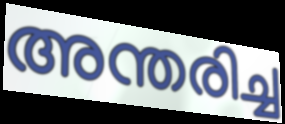
അന്തരിച്ച